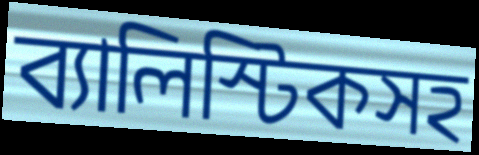
ব্যালিস্টিকসহ